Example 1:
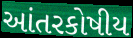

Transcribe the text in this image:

આંતરકોષીય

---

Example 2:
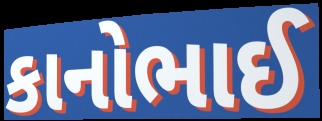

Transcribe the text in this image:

કાનોભાઈ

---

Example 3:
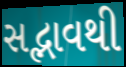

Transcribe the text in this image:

સદ્ભાવથી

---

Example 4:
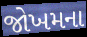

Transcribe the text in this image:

જોખમના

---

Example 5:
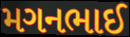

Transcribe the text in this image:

મગનભાઈ